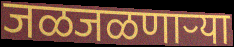
जळजळणाऱ्या